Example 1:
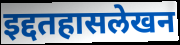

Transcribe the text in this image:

इद्दतहासलेखन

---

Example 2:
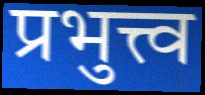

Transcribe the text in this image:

प्रभुत्त्व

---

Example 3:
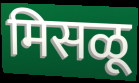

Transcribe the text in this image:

मिसळू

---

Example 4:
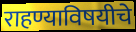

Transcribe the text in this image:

राहण्याविषयीचे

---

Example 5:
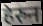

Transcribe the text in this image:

हेरुन